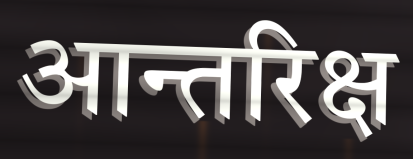
आन्तरिक्ष